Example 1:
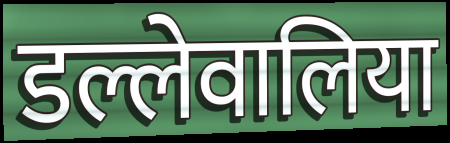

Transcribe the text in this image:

डल्लेवालिया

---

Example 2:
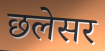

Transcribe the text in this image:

छलेसर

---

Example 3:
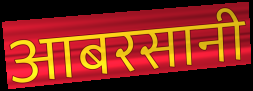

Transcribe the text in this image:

आबरसानी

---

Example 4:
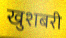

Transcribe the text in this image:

खुशबरी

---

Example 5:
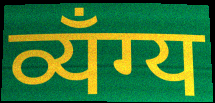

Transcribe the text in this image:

व्यँग्य